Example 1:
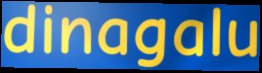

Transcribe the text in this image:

dinagalu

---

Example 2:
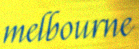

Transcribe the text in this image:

melbourne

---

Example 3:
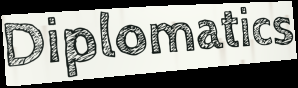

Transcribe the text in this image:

Diplomatics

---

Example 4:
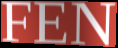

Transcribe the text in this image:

FEN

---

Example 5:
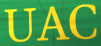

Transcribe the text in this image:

UAC